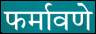
फर्मावणे